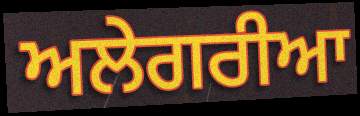
ਅਲੇਗਰੀਆ